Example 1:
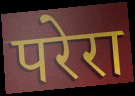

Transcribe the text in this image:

परेरा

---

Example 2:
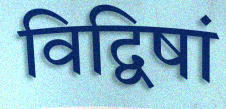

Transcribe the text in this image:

विद्विषां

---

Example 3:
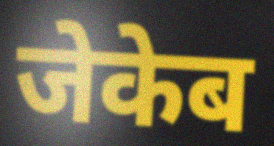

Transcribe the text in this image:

जेकेब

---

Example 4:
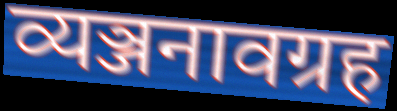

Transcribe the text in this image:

व्यञ्जनावग्रह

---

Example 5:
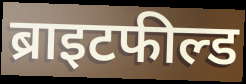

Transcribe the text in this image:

ब्राइटफील्ड